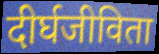
दीर्घजीविता